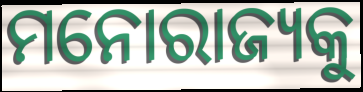
ମନୋରାଜ୍ୟକୁ